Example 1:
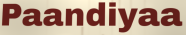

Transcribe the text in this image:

Paandiyaa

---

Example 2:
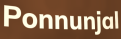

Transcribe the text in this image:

Ponnunjal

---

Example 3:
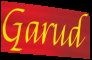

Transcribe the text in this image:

Garud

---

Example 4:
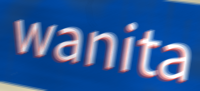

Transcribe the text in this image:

wanita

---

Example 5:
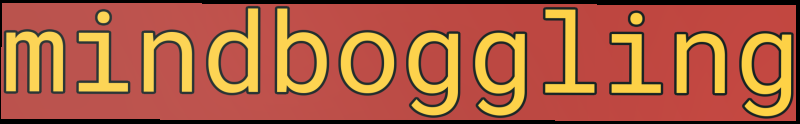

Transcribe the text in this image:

mindboggling